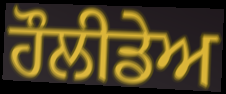
ਹੌਲੀਡੇਅ